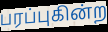
பரப்புகின்ற